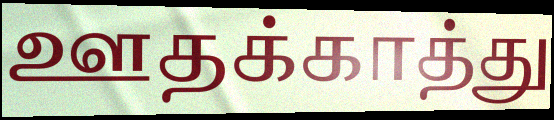
ஊதக்காத்து